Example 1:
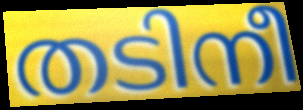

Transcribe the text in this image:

തടിനീ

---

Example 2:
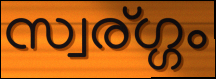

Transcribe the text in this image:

സ്വര്ഗ്ഗം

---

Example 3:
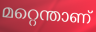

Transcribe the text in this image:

മറ്റെന്താണ്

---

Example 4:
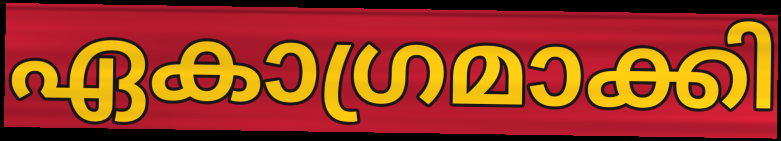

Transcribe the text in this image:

ഏകാഗ്രമാക്കി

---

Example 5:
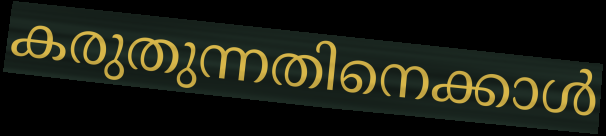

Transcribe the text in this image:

കരുതുന്നതിനെക്കാൾ